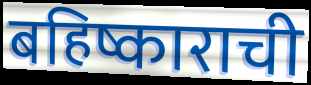
बहिष्काराची